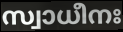
സ്വാധീനഃ